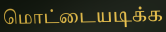
மொட்டையடிக்க